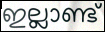
ഇല്ലാണ്ട്